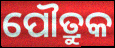
ପୌତ୍ରୁକ